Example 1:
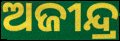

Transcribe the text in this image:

ଅଜୀନ୍ଦ୍ର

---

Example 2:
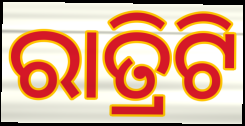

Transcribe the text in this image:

ରାତ୍ରିଟି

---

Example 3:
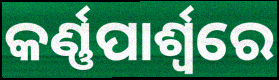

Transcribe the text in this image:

କର୍ଣ୍ଣପାର୍ଶ୍ୱରେ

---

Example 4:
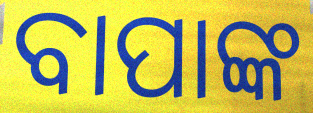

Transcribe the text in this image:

ବାପାଙ୍କ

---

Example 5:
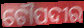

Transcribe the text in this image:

ଚୌପଦୀର